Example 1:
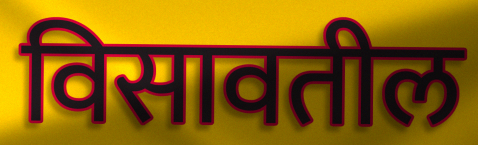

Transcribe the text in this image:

विसावतील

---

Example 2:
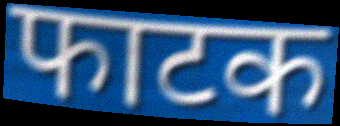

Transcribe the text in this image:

फाटक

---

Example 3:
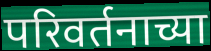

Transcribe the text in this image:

परिवर्तनाच्या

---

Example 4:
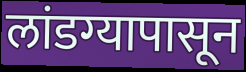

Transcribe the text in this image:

लांडग्यापासून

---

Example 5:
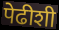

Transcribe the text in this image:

पेढीशी